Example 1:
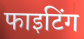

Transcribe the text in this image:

फाइटिंग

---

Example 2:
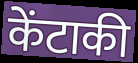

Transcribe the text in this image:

केंटाकी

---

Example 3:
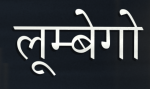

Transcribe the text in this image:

लूम्बेगो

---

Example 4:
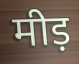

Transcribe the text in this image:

मीड़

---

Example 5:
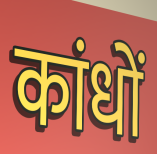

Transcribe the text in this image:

कांधों